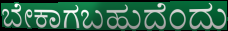
ಬೇಕಾಗಬಹುದೆಂದು